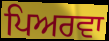
ਪਿਅਰਵਾ